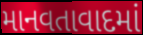
માનવતાવાદમાં